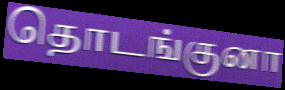
தொடங்குனா